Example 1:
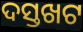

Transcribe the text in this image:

ଦସ୍ତଖଟ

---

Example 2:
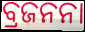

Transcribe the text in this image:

ବ୍ରଜନନା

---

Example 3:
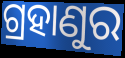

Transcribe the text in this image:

ଗ୍ରହାଣୁର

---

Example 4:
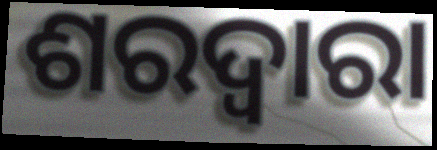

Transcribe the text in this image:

ଶରଦ୍ୱାରା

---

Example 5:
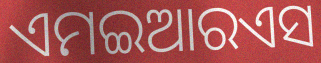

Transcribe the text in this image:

ଏମଇଆରଏସ